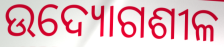
ଉଦ୍ୟୋଗଶୀଳ